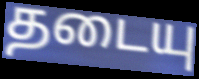
தடையு